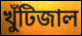
খুঁটিজাল